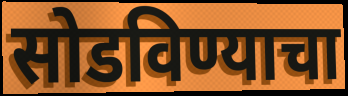
सोडविण्याचा